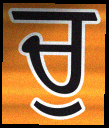
ਚੁ